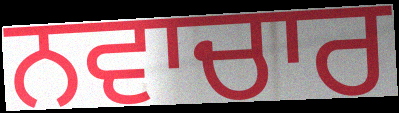
ਨਵਾਚਾਰ